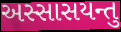
અસ્સાસયન્તુ